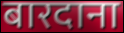
बारदाना